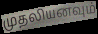
முதலியனவும்